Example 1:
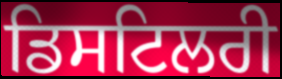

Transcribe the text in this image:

ਡਿਸਟਿਲਰੀ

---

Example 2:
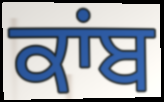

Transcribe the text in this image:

ਕਾਂਬ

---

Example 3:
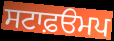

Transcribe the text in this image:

ਸਟਾਫ਼ੳਮਪ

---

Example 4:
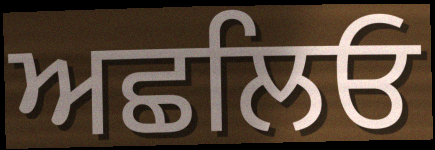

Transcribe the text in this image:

ਅਛਲਿਓ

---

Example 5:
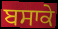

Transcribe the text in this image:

ਬਸਾਕੇ